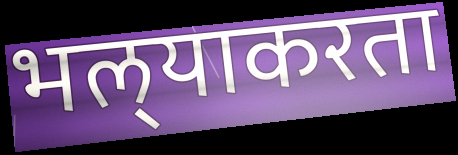
भल्याकरता